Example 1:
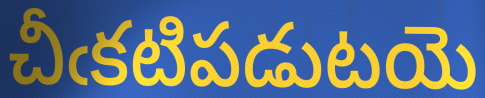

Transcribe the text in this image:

చీఁకటిపడుటయె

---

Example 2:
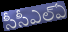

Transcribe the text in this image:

సీసీఎల్ఏ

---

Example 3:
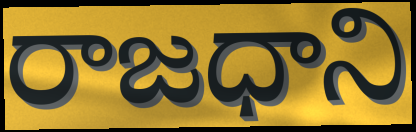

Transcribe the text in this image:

రాజధాని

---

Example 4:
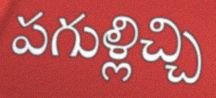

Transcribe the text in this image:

పగుళ్లిచ్చి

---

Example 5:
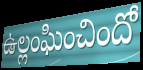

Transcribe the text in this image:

ఉల్లంఘించిందో